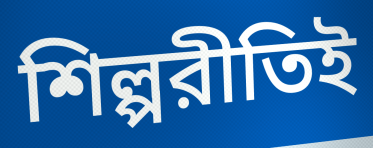
শিল্পরীতিই